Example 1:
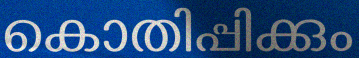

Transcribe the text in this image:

കൊതിപ്പിക്കും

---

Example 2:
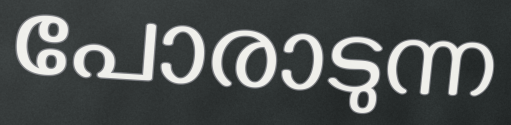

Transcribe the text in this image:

പോരാടുന്ന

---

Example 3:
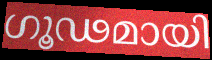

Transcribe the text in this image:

ഗൂഢമായി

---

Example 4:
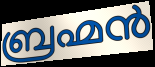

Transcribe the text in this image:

ബ്രഹ്മൻ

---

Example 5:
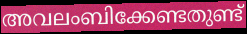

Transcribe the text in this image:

അവലംബിക്കേണ്ടതുണ്ട്